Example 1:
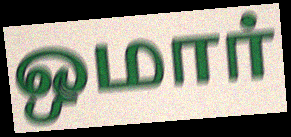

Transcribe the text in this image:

ஒமார்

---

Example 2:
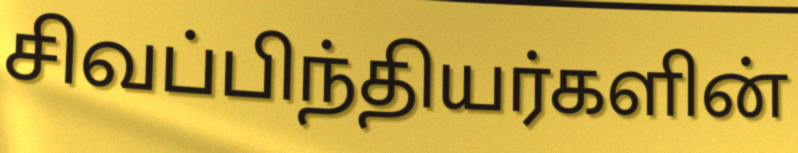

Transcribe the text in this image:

சிவப்பிந்தியர்களின்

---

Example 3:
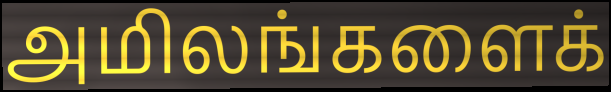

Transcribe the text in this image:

அமிலங்களைக்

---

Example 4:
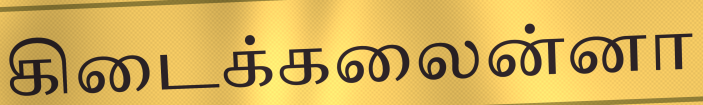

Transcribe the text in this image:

கிடைக்கலைன்னா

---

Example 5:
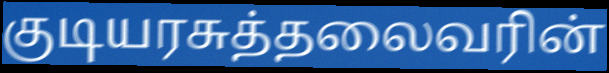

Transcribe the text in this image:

குடியரசுத்தலைவரின்